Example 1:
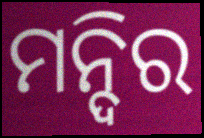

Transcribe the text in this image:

ମନ୍ଦିର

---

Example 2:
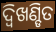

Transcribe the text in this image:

ଦ୍ଵିଖଣ୍ଡିତ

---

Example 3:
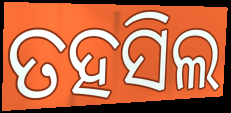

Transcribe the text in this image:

ତହସିଲ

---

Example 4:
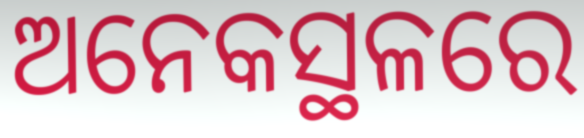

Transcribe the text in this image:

ଅନେକସ୍ଥଳରେ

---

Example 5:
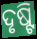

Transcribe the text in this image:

ଦୃଷ୍ଟି